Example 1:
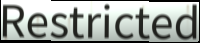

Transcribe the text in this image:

Restricted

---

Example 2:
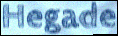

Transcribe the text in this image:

Hegade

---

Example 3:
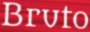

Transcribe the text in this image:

Bruto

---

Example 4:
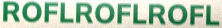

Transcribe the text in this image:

ROFLROFLROFL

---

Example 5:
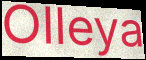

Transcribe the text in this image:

Olleya